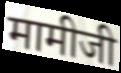
मामीजी